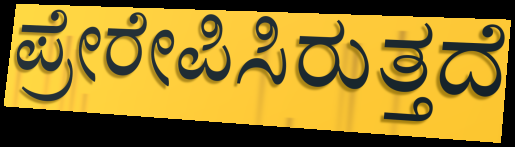
ಪ್ರೇರೇಪಿಸಿರುತ್ತದೆ